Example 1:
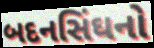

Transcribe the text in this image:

બદનસિંઘનો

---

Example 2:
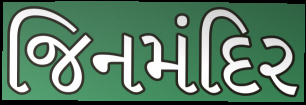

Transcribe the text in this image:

જિનમંદિર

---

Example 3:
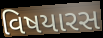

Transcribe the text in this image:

વિષયારસ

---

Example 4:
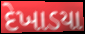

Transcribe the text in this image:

દેખાડયા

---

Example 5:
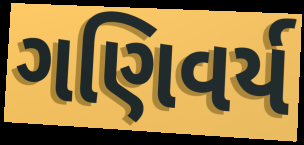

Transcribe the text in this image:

ગણિવર્ય